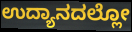
ಉದ್ಯಾನದಲ್ಲೋ